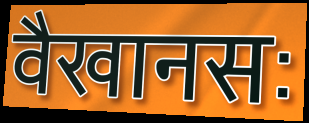
वैखानसः